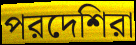
পরদেশিরা